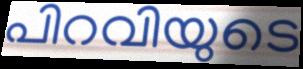
പിറവിയുടെ